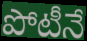
పోటీనే